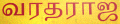
வரதராஜ